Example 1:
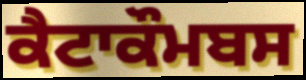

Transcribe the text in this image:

ਕੈਟਾਕੌਮਬਸ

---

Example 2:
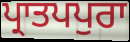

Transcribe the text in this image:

ਪ੍ਰਾਤਪਪੁਰਾ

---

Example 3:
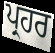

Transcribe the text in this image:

ਪ੍ਰਹਰ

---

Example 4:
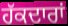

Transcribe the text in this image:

ਹੱਕਦਾਰਾਂ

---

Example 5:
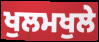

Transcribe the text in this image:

ਖੁਲਮਖੁਲੇ